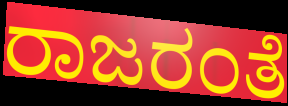
ರಾಜರಂತೆ